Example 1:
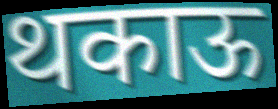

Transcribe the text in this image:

थकाऊ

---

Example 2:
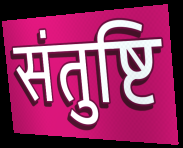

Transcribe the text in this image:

संतुष्टि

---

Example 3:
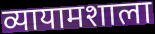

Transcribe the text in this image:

व्यायामशाला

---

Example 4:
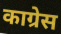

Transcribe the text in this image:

काग्रेस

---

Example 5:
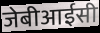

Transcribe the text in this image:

जेबीआईसी